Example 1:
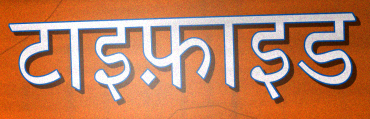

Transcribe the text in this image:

टाइफ़ाइड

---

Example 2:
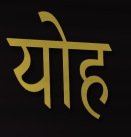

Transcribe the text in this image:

योह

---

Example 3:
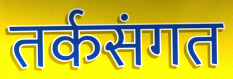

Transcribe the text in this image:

तर्कसंगत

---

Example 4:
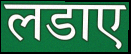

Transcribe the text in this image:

लडाए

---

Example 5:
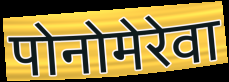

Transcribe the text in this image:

पोनोमेरेवा